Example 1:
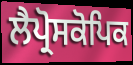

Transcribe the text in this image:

ਲੈਪ੍ਰੋਸਕੋਪਿਕ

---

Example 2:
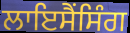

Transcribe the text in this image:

ਲਾਇਸੈਂਸਿੰਗ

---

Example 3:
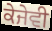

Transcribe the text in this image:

ਕੇਜੇਵੀ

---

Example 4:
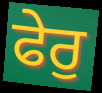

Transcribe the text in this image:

ਫੇਰੁ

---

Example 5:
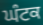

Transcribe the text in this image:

ਘੰਟਕ